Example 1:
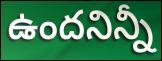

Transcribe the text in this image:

ఉందనిన్నీ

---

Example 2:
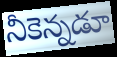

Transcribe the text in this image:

నీకెన్నడూ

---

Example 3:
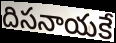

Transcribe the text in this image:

దిసనాయకే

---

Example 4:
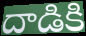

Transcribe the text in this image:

దాడికి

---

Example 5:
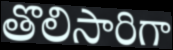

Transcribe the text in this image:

తొలిసారిగా